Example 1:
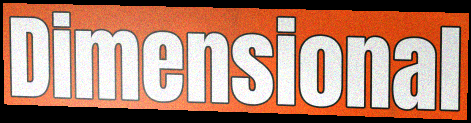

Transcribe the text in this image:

Dimensional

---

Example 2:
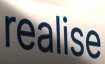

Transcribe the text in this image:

realise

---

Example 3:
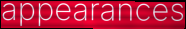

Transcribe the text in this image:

appearances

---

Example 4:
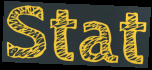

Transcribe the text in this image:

Stat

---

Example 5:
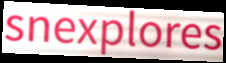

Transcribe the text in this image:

snexplores